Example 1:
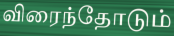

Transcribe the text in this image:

விரைந்தோடும்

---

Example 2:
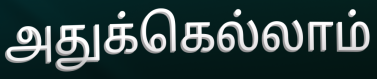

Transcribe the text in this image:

அதுக்கெல்லாம்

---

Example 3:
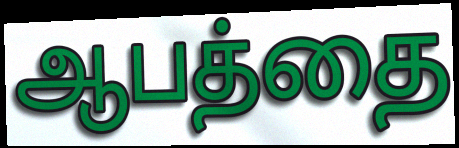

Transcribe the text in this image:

ஆபத்தை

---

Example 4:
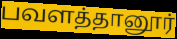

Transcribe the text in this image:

பவளத்தானூர்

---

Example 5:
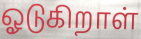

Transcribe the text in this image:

ஓடுகிறாள்